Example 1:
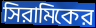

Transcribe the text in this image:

সিরামিকের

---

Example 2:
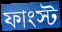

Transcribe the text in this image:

ফাংস্ট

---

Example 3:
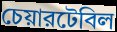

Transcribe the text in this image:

চেয়ারটেবিল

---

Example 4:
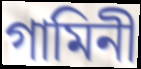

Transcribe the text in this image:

গামিনী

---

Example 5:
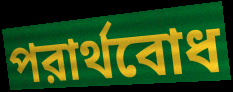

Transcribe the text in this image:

পরার্থবোধ